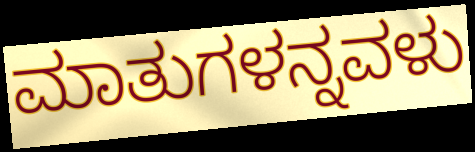
ಮಾತುಗಳನ್ನವಳು